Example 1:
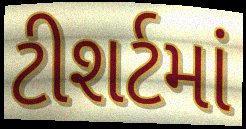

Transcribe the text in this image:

ટીશર્ટમાં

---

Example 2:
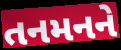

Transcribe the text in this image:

તનમનને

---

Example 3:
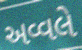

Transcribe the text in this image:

અવ્વલે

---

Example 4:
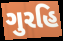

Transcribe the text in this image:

ગુરહિ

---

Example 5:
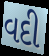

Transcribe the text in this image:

વદી